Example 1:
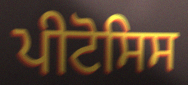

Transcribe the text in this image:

ਪੀਟੋਸਿਸ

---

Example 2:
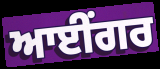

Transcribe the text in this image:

ਆਈਂਗਰ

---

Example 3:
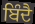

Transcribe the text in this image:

ਬਿੰਦੈ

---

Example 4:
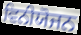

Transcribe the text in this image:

ਵਿਨੀਯੋਜਨ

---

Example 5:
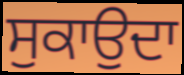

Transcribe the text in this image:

ਸੁਕਾਉਦਾ